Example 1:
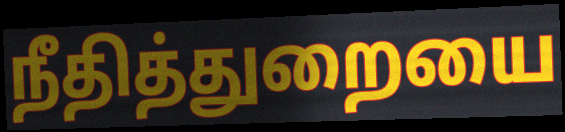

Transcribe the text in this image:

நீதித்துறையை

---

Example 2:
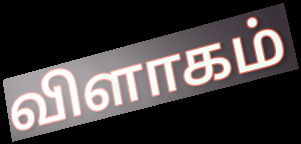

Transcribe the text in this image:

விளாகம்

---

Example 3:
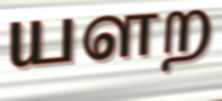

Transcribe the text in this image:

யளற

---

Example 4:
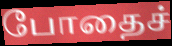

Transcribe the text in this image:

போதைச்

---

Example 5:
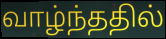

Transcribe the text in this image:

வாழ்ந்ததில்